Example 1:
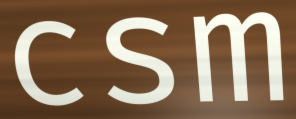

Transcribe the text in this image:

csm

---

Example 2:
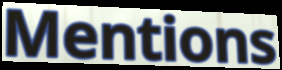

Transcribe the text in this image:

Mentions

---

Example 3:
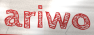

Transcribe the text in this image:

ariwo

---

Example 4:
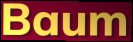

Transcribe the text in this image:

Baum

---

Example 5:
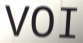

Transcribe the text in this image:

VOI